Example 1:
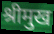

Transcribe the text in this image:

श्रीमुख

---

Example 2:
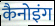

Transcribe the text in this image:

कैनोइंग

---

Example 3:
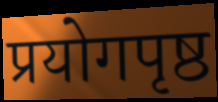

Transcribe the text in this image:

प्रयोगपृष्ठ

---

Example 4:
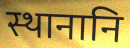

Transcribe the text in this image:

स्थानानि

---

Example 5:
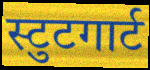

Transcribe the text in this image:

स्टुटगार्ट